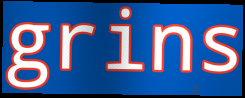
grins